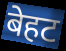
बेहट